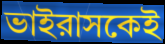
ভাইরাসকেই